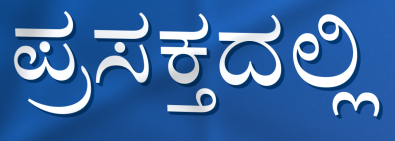
ಪ್ರಸಕ್ತದಲ್ಲಿ